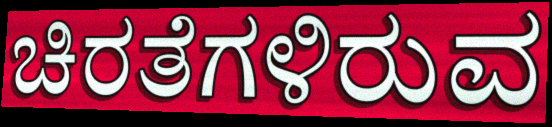
ಚಿರತೆಗಳಿರುವ